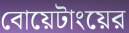
বোয়েটাংয়ের